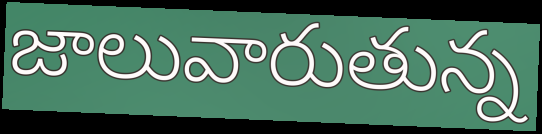
జాలువారుతున్న